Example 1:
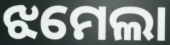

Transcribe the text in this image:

ଝମେଲା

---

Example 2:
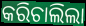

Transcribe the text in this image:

କରିଚାଲିଲା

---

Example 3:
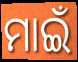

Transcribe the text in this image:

ମାଇଁ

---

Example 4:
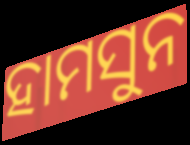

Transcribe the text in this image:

ହାମସୁନ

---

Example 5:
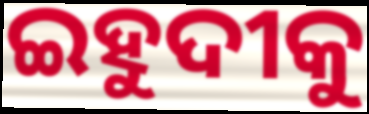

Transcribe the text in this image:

ଇହୁଦୀକୁ